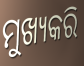
ମୁଖ୍ୟକରି